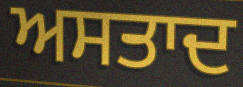
ਅਸਤਾਦ